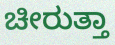
ಚೀರುತ್ತಾ